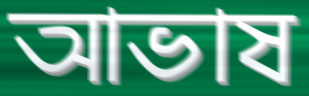
আভাষ